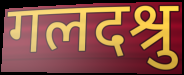
गलदश्रु